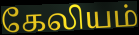
கேலியம்